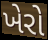
ખેરો